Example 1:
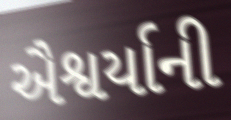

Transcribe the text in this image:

ઐશ્વર્યાની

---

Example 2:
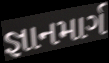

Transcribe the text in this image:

જ્ઞાનમાર્ગ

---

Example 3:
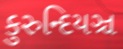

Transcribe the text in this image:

કુરુન્દિયઞ્ચ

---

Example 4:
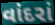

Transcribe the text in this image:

વાંદરાં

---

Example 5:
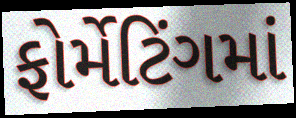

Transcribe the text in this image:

ફોર્મેટિંગમાં